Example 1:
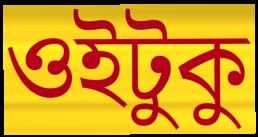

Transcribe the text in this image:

ওইটুকু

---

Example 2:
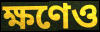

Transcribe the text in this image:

ক্ষণেও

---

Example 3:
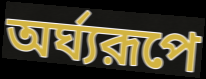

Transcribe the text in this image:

অর্ঘ্যরূপে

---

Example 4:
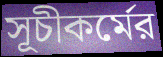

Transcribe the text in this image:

সূচীকর্মের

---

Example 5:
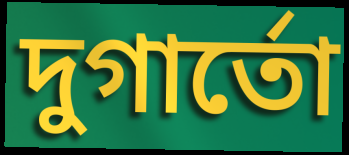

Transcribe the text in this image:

দুগার্তো